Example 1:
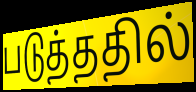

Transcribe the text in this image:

படுத்ததில்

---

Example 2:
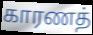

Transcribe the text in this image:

காரணத்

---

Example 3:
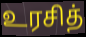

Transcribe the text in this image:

உரசித்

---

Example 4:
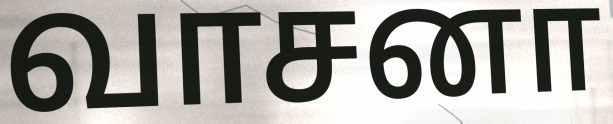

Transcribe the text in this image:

வாசனா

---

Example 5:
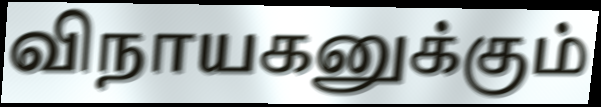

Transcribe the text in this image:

விநாயகனுக்கும்